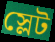
স্লেট